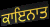
ਕਾਇਨਾਤ